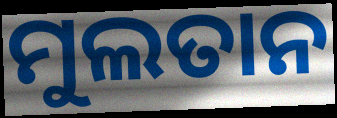
ମୁଲତାନ